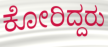
ಕೋರಿದ್ದರು